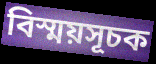
বিস্ময়সূচক